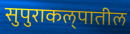
सुपुराकल्पातील